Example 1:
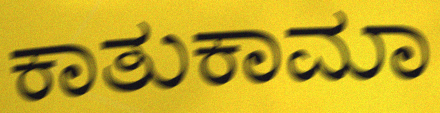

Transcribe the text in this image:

ಕಾತುಕಾಮಾ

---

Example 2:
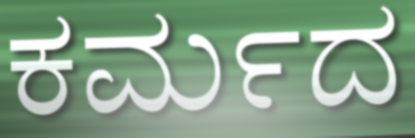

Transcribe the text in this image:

ಕರ್ಮದ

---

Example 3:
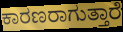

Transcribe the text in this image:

ಕಾರಣರಾಗುತ್ತಾರೆ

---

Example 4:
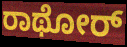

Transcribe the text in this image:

ರಾಥೋರ್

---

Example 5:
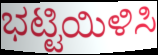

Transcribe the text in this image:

ಭಟ್ಟಿಯಿಳಿಸಿ